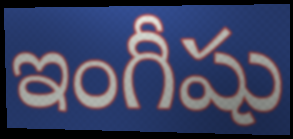
ఇంగీషు